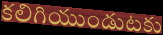
కలిగియుండుటకు